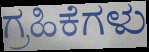
ಗ್ರಹಿಕೆಗಳು